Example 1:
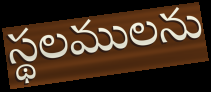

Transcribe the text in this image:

స్థలములను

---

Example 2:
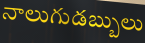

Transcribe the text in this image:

నాలుగుడబ్బులు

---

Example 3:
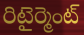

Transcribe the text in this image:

రిటైర్మెంట్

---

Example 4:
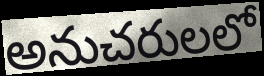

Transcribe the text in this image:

అనుచరులలో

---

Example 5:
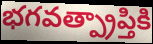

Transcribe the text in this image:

భగవత్ప్రాప్తికి